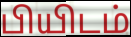
பியிடம்